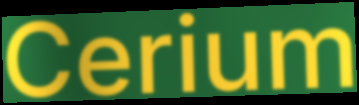
Cerium